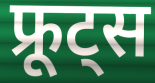
फ्रूट्स